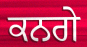
ਕਨਗੇ